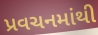
પ્રવચનમાંથી